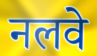
नलवे